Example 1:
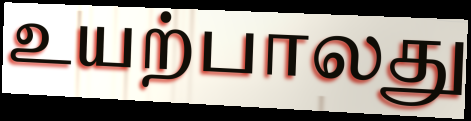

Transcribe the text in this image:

உயற்பாலது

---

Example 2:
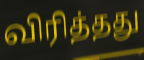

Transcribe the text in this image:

விரித்தது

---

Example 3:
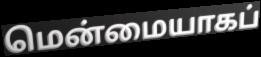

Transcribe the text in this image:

மென்மையாகப்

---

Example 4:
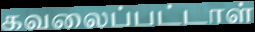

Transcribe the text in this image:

கவலைப்பட்டாள்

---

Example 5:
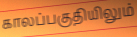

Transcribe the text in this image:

காலப்பகுதியிலும்